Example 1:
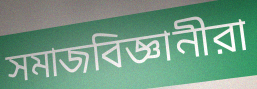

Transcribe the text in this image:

সমাজবিজ্ঞানীরা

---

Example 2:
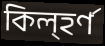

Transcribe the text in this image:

কিল্‌হর্ণ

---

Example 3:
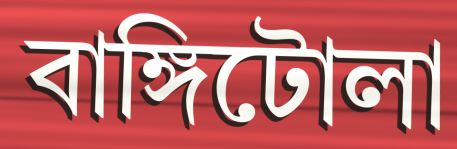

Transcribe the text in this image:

বাঙ্গিটোলা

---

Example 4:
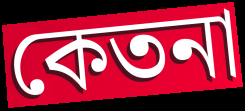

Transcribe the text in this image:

কেতনা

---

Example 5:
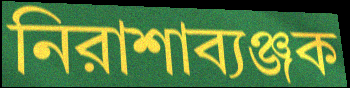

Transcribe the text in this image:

নিরাশাব্যঞ্জক